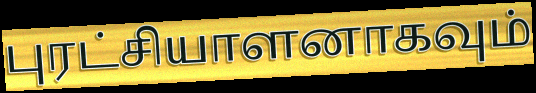
புரட்சியாளனாகவும்